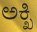
ಅಕ್ಖಿ